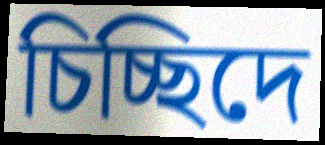
চিচ্ছিদে